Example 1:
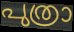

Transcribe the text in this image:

പുത്രാ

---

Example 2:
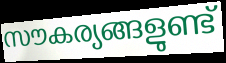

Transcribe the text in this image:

സൗകര്യങ്ങളുണ്ട്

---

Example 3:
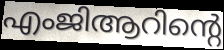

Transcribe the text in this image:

എംജിആറിന്റെ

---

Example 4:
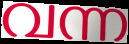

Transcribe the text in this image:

വന്ന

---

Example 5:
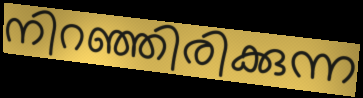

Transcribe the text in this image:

നിറഞ്ഞിരിക്കുന്ന